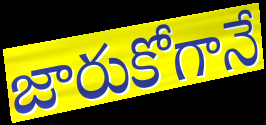
జారుకోగానే